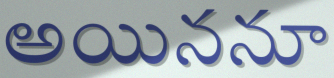
అయిననూ